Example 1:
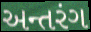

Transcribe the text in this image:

અન્તરંગ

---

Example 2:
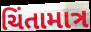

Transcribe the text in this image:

ચિંતામાત્ર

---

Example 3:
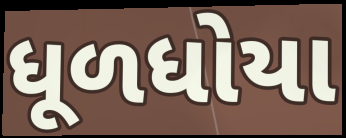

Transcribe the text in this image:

ધૂળધોયા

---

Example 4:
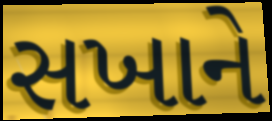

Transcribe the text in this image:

સખાને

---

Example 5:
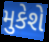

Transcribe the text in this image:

મુકેશે